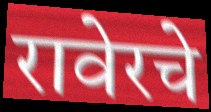
रावेरचे